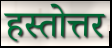
हस्तोत्तर